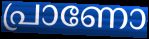
പ്രാണോ